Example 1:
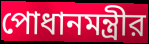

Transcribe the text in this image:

পোধানমন্ত্রীর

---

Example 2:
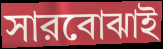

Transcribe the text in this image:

সারবোঝাই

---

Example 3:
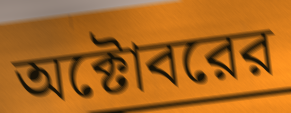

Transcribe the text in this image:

অক্টোবরের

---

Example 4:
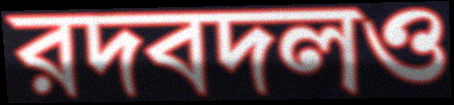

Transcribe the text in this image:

রদবদলও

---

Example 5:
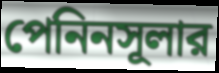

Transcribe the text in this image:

পেনিনসূলার